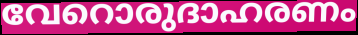
വേറൊരുദാഹരണം